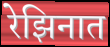
रेझिनात